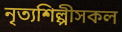
নৃত্যশিল্পীসকল